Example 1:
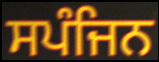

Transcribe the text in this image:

ਸਪੰਜਿਨ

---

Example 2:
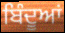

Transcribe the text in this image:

ਬਿੰਦੂਆਂ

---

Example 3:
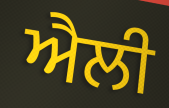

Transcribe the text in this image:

ਐਲੀ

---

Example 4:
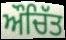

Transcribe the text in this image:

ਔਚਿੱਤ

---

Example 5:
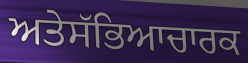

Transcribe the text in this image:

ਅਤੇਸੱਭਿਆਚਾਰਕ